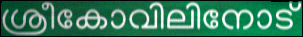
ശ്രീകോവിലിനോട്